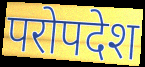
परोपदेश